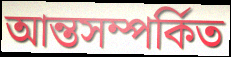
আন্তসম্পর্কিত